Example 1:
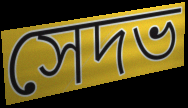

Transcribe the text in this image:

সেদভ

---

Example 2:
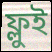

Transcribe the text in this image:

ফ্লুই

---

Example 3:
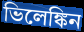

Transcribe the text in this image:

ভিলেঙ্কিন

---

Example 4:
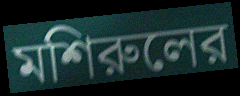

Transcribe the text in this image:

মশিরুলের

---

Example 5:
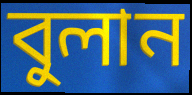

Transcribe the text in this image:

বুলান